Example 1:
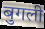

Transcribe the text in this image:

बुगली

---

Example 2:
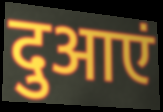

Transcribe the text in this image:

दुआएं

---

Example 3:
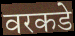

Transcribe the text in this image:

वरकडे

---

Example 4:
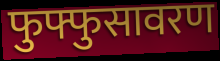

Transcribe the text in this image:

फुफ्फुसावरण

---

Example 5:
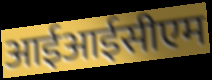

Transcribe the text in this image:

आईआईसीएम